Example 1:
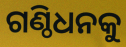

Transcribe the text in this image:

ଗଣ୍ଠିଧନକୁ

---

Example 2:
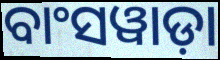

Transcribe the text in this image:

ବାଂସୱାଡ଼ା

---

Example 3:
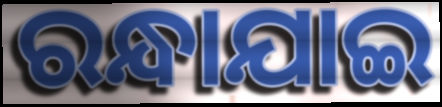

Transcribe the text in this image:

ରନ୍ଧାଯାଇ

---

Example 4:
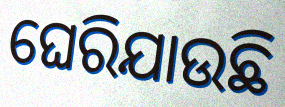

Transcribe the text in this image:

ଘେରିଯାଉଛି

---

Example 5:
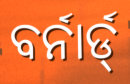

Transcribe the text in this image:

ବର୍ନାର୍ଡ୍